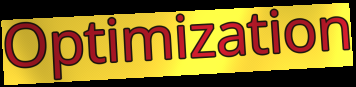
Optimization